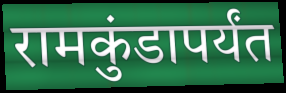
रामकुंडापर्यंत